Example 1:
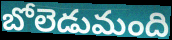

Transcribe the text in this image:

బోలెడుమంది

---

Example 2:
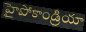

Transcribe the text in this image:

హైపోకాండ్రియా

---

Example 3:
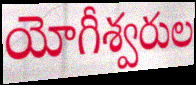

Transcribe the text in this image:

యోగీశ్వరుల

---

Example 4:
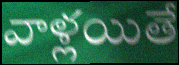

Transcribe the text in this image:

వాళ్లయితే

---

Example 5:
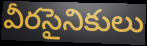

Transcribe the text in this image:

వీరసైనికులు